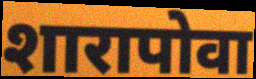
शारापोवा